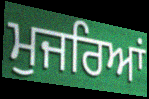
ਮੁਜਰਿਆਂ